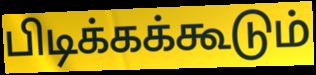
பிடிக்கக்கூடும்